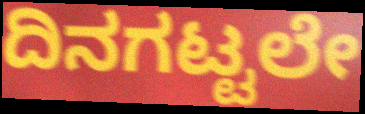
ದಿನಗಟ್ಟಲೇ